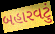
બહારવટું